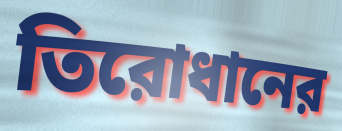
তিরোধানের